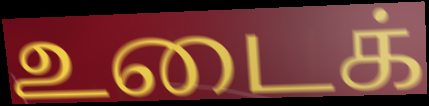
உடைக்